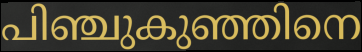
പിഞ്ചുകുഞ്ഞിനെ